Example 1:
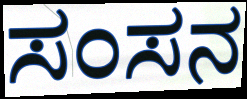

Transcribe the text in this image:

ಸಂಸನ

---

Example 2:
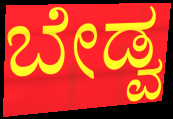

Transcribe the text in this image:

ಬೇಡ್ವ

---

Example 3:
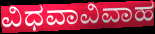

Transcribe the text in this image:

ವಿಧವಾವಿವಾಹ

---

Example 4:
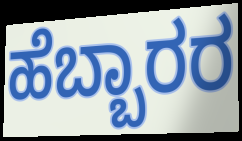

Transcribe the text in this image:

ಹೆಬ್ಬಾರರ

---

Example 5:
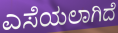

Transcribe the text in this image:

ಎಸೆಯಲಾಗಿದೆ